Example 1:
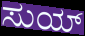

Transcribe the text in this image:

ಸುಯ್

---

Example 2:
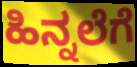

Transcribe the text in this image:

ಹಿನ್ನಲೆಗೆ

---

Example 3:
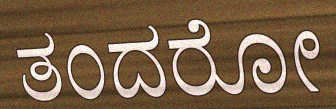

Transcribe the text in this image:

ತಂದರೋ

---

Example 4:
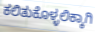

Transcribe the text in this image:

ಕಲಿತುಕೊಳ್ಳಲಿಕ್ಕಾಗಿ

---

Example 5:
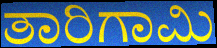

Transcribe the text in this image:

ತಾರಿಗಾಮಿ